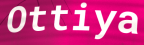
Ottiya